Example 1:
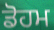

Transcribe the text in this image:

ਡੋਹਮ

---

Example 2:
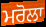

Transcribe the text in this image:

ਮਰੋਲਾ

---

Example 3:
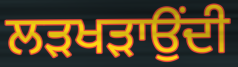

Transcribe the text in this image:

ਲੜਖੜਾਉਂਦੀ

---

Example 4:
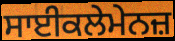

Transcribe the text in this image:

ਸਾਈਕਲੇਮੇਨਜ਼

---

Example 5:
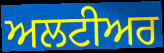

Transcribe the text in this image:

ਅਲਟੀਅਰ